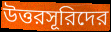
উত্তরসূরিদের